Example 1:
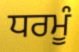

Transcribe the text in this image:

ਧਰਮੂੰ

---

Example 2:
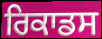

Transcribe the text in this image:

ਰਿਕਾਡਸ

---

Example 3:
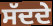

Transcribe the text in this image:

ਸੱਦਦੇ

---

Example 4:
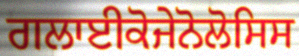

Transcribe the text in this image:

ਗਲਾਈਕੋਜੇਨੋਲੋਸਿਸ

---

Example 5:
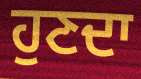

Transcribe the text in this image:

ਹੁਣਦਾ